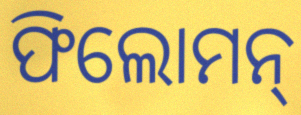
ଫିଲୋମନ୍